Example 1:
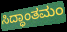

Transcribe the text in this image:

ಸಿದ್ಧಾಂತಮಂ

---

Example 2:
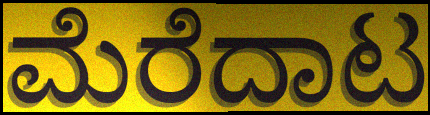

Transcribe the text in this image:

ಮೆರೆದಾಟ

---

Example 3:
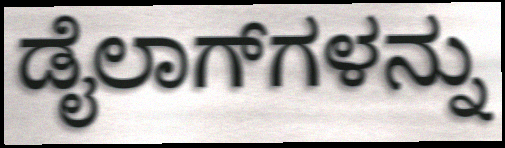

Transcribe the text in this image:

ಡೈಲಾಗ್‌ಗಳನ್ನು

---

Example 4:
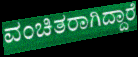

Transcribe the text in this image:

ವಂಚಿತರಾಗಿದ್ದಾರೆ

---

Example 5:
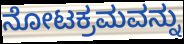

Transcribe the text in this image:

ನೋಟಕ್ರಮವನ್ನು